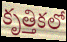
కృత్తికలో